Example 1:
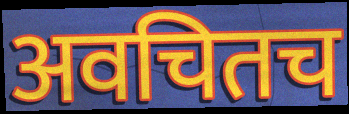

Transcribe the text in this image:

अवचितच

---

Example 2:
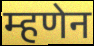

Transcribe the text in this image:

म्हणेन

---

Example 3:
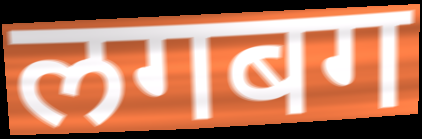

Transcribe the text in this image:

लगबग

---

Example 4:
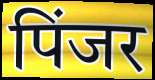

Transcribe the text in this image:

पिंजर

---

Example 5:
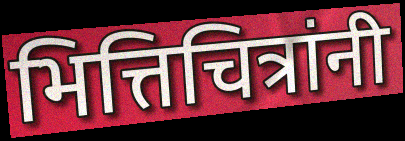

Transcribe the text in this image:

भित्तिचित्रांनी